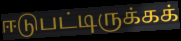
ஈடுபட்டிருக்கக்